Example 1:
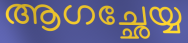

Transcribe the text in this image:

ആഗച്ഛേയ്യ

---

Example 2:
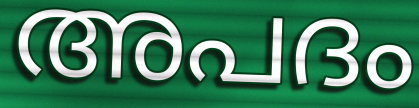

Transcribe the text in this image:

അപദം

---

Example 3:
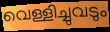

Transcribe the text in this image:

വെള്ളിച്ചുവടും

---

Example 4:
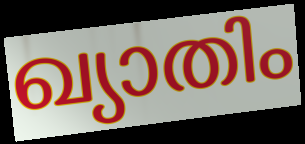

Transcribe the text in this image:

ഖ്യാതിം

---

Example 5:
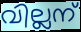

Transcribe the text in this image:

വില്ലന്